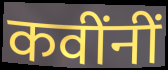
कवींनीं